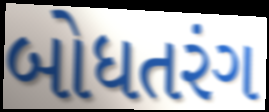
બોધતરંગ